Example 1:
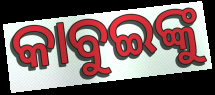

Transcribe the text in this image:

କାବୁଇଙ୍କୁ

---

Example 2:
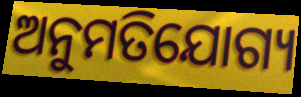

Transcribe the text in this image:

ଅନୁମତିଯୋଗ୍ୟ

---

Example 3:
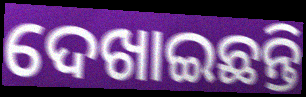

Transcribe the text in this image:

ଦେଖାଇଛନ୍ତି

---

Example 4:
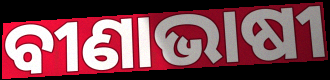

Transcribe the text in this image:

ବୀଣାଭାଷୀ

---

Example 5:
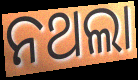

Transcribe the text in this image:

ନଥଲା